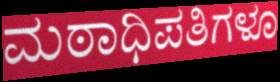
ಮಠಾಧಿಪತಿಗಳೂ